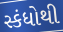
સ્કંધોથી